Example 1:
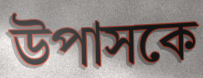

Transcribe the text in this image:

উপাসকে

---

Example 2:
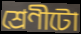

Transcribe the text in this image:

শ্ৰেণীটো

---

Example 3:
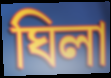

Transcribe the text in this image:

ঘিলা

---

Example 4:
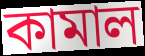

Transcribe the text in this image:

কামাল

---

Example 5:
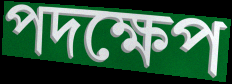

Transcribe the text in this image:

পদক্ষেপ